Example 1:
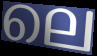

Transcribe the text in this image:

ലെ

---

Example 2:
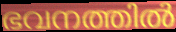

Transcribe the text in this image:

ഭവനത്തിൽ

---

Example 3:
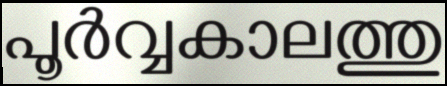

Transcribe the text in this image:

പൂർവ്വകാലത്തു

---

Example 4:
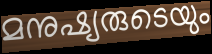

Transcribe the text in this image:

മനുഷ്യരുടെയും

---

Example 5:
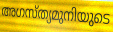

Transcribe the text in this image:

അഗസ്ത്യമുനിയുടെ